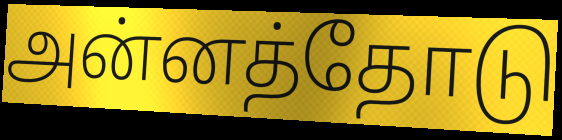
அன்னத்தோடு